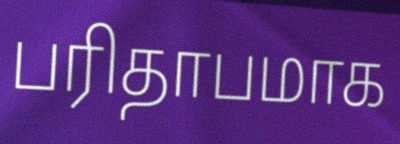
பரிதாபமாக